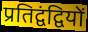
प्रतिद्वंद्वियों